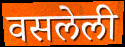
वसलेली